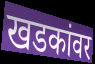
खडकांवर